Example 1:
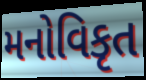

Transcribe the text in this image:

મનોવિકૃત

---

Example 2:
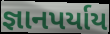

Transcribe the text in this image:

જ્ઞાનપર્યાય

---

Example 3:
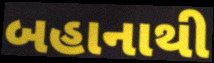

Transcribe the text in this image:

બહાનાથી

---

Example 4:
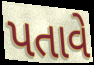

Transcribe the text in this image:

પતાવે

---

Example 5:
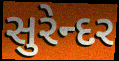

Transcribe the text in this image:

સુરેન્દર